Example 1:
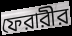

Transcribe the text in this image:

ফেরারীর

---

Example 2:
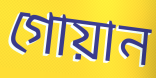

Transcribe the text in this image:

গোয়ান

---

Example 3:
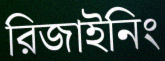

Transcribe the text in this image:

রিজাইনিং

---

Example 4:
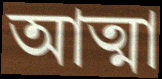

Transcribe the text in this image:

আত্মা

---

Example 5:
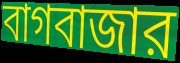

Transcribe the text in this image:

বাগবাজার